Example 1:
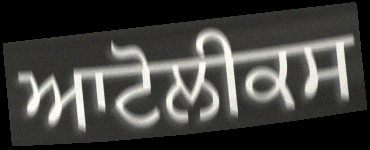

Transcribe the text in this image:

ਆਟੋਲੀਕਸ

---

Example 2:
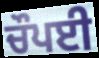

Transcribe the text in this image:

ਚੌਪਈ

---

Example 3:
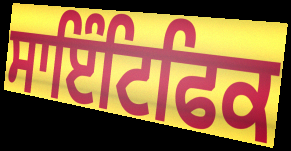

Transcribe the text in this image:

ਸਾਇੰਟਿਫਿਕ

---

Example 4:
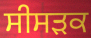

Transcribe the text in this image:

ਸੀਸੜਕ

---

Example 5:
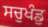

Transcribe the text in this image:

ਸਚੁਖੰਡੁ